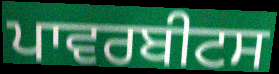
ਪਾਵਰਬੀਟਸ